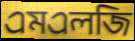
এমএলজি